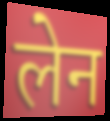
लेन